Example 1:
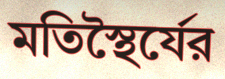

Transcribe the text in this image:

মতিস্থৈর্যের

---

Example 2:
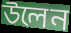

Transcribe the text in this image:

উলেন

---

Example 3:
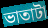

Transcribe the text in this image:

ভাতাটা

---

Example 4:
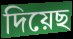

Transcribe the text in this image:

দিয়েছ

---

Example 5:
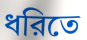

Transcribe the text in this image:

ধরিতে